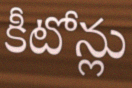
కీటోన్లు